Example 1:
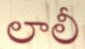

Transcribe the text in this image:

లాలీ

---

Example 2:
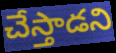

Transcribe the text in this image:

చేస్తాడని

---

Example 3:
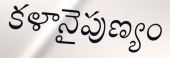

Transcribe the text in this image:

కళానైపుణ్యం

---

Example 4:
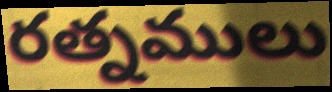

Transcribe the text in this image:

రత్నములు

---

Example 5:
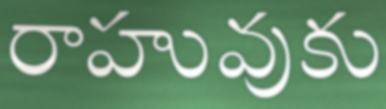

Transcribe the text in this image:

రాహువుకు